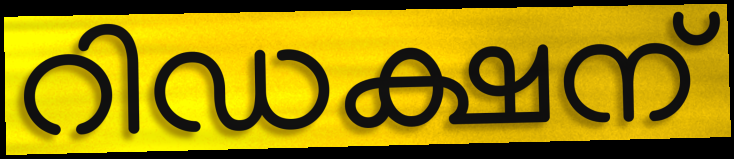
റിഡക്ഷന്